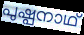
പുഷ്പനാഥ്